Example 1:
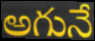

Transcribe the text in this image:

అగునే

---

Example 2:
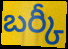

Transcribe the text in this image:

బర్కీ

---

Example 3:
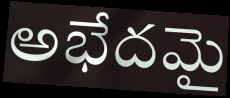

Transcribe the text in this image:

అభేదమై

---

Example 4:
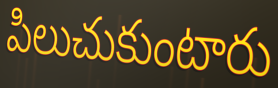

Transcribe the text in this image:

పిలుచుకుంటారు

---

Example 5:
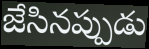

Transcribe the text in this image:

జేసినప్పుడు